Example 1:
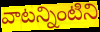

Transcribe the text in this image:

వాటన్నింటిని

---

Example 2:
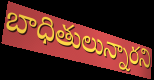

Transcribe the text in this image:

బాధితులున్నారని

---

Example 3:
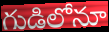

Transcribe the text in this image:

గుడిలోనూ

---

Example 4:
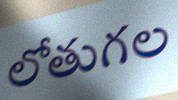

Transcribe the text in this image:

లోతుగల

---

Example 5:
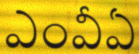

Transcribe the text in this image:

ఎంవీఏ